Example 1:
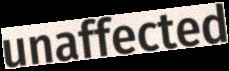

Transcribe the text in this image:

unaffected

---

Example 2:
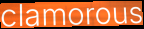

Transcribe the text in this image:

clamorous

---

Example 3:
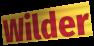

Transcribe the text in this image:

Wilder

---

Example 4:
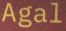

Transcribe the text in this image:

Agal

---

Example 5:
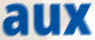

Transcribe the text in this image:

aux